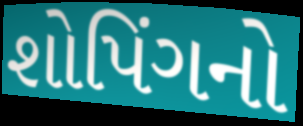
શોપિંગનો